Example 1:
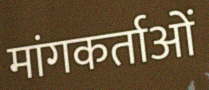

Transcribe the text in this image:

मांगकर्ताओं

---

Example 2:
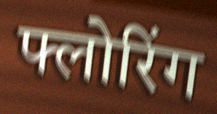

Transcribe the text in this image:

फ्लोरिंग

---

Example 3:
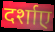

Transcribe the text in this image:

दर्शाए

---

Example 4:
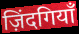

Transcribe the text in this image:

ज़िंदगियाँ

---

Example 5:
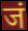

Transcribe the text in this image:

जं